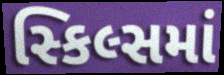
સ્કિલ્સમાં